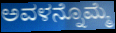
ಅವಳನ್ನೊಮ್ಮೆ